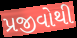
પ્રજીવોથી